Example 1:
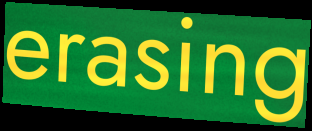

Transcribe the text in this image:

erasing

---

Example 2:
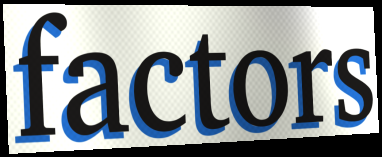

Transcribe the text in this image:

factors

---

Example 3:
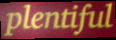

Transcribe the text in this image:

plentiful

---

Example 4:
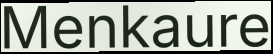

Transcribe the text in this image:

Menkaure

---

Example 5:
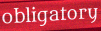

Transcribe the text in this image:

obligatory